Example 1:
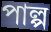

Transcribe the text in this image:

পাল্প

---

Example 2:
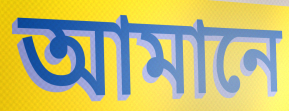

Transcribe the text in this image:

আমানে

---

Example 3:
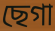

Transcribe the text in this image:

ছেগা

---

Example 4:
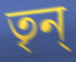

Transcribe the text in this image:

তৃন্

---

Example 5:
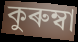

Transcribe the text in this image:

কুৰুম্বা